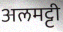
अलमट्टी